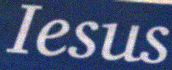
Iesus